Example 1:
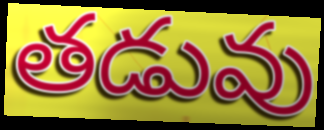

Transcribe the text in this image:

తడువు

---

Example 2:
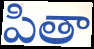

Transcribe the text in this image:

పితా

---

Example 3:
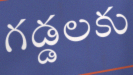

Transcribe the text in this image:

గడ్డలకు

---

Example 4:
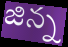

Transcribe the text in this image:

జిన్న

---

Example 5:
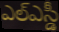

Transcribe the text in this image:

ఎల్ఎస్డీ